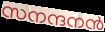
സനന്ദനൻ